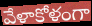
వేళాకోళంగా